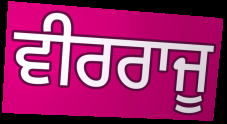
ਵੀਰਰਾਜੂ